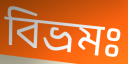
বিভ্রমঃ